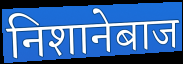
निशानेबाज